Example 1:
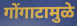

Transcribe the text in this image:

गोंगाटामुळे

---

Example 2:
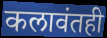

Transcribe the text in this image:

कलावंतही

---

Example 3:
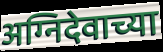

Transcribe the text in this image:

अग्निदेवाच्या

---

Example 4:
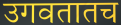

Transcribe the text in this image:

उगवतातच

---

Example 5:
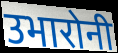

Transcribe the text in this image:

उभारोनी